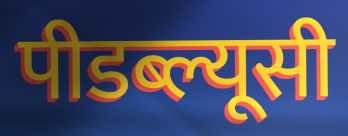
पीडब्ल्यूसी